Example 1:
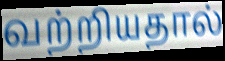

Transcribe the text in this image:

வற்றியதால்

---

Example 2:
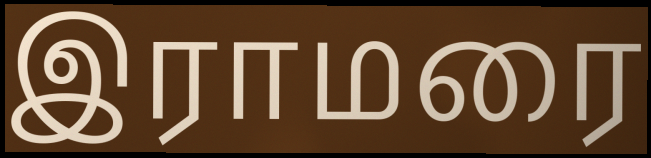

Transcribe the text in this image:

இராமரை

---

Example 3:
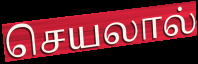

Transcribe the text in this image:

செயலால்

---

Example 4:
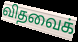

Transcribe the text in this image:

விதவைக்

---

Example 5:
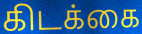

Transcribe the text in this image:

கிடக்கை